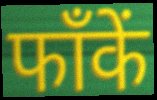
फाँकें